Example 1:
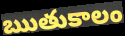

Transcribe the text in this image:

ఋతుకాలం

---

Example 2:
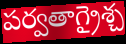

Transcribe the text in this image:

పర్వతాగ్రైశ్చ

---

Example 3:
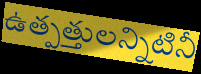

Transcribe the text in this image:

ఉత్పత్తులన్నిటినీ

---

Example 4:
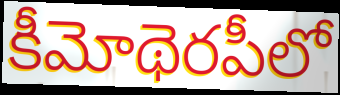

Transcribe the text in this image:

కీమోథెరపీలో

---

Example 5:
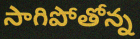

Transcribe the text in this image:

సాగిపోతోన్న